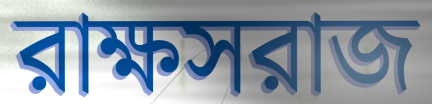
রাক্ষসরাজ